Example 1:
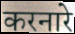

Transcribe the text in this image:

करनारे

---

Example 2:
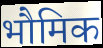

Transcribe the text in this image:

भौमिक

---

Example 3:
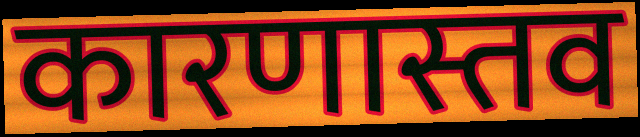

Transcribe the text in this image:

कारणास्तव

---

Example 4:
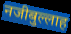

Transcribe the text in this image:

नजीबुल्लाह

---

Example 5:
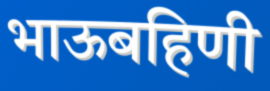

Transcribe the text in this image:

भाऊबहिणी